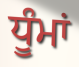
ਧੂੰਮਾਂ